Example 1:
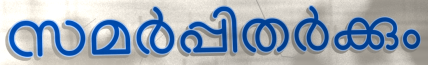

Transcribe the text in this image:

സമർപ്പിതർക്കും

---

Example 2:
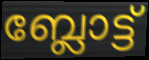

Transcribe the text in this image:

ബ്ലോട്ട്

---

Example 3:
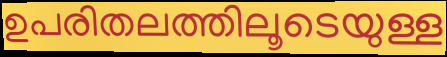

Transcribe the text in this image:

ഉപരിതലത്തിലൂടെയുള്ള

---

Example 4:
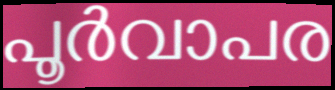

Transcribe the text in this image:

പൂർവാപര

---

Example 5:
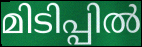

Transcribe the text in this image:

മിടിപ്പിൽ